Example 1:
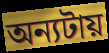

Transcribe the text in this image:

অন্যটায়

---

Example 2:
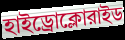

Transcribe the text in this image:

হাইড্রোক্লোরাইড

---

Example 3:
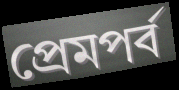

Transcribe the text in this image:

প্রেমপর্ব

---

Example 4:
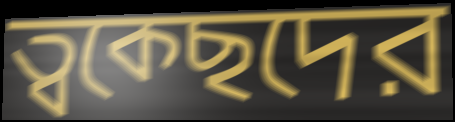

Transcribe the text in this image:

ত্বক্ছেদের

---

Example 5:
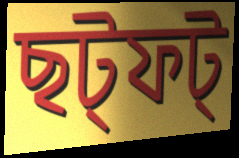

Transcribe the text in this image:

ছট্‌ফট্